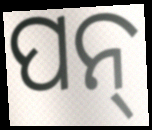
ପନ୍